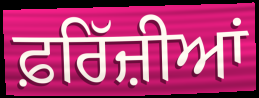
ਫ਼ਰਿੱਜ਼ੀਆਂ